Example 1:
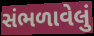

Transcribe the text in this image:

સંભળાવેલું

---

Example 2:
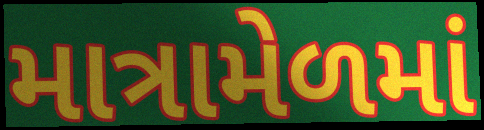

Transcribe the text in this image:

માત્રામેળમાં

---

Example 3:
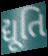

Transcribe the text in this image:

દ્યૂતિ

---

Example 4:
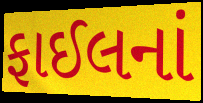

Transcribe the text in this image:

ફાઈલનાં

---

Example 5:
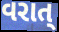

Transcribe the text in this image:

વરાત્